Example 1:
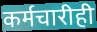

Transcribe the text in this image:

कर्मचारीही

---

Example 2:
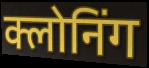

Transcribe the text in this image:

क्लोनिंग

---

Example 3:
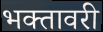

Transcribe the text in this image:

भक्तावरी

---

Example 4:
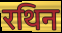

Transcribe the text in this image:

रथिन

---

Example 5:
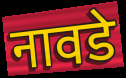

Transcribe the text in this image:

नावडे